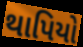
થાપિયો